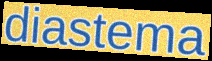
diastema